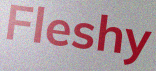
Fleshy